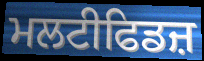
ਮਲਟੀਫਿਡਜ਼